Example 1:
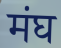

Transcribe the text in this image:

मंघ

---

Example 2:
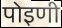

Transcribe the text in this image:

पोइणी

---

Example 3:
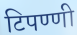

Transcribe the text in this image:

टिपण्णी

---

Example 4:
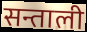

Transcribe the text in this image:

सन्ताली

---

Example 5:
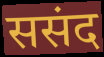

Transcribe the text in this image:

ससंद